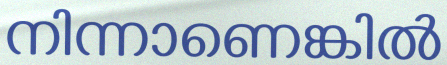
നിന്നാണെങ്കിൽ